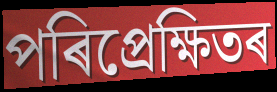
পৰিপ্ৰেক্ষিতৰ